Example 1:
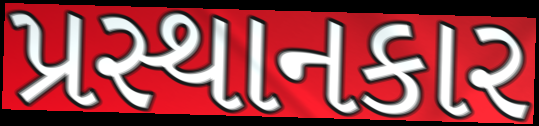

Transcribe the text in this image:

પ્રસ્થાનકાર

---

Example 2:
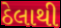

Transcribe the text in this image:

ઠેલાથી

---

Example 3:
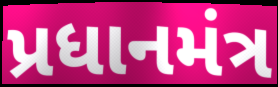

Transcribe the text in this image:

પ્રધાનમંત્ર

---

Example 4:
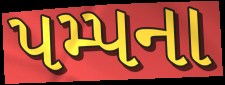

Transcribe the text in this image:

પમ્પના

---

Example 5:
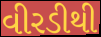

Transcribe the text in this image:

વીરડીથી